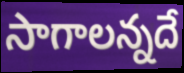
సాగాలన్నదే